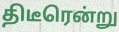
திடீரென்று